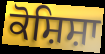
ਕੋਸ਼ਿਸ਼ਾ